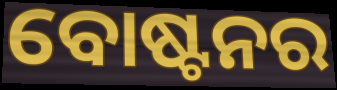
ବୋଷ୍ଟନର